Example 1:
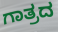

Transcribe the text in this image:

ಗಾತ್ರದ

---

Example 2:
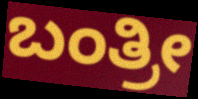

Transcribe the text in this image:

ಬಂತ್ರೀ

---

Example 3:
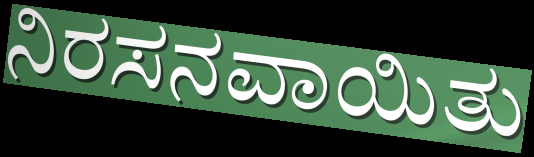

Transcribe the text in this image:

ನಿರಸನವಾಯಿತು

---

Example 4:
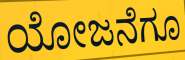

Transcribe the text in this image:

ಯೋಜನೆಗೂ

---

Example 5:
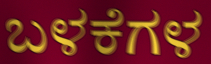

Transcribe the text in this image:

ಬಳಕೆಗಳ